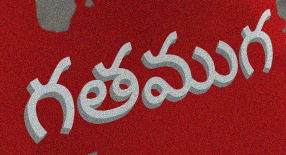
గతముగ